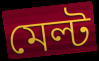
মেল্ট